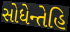
સોધેન્તેહિ